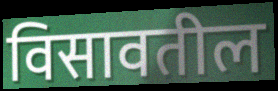
विसावतील